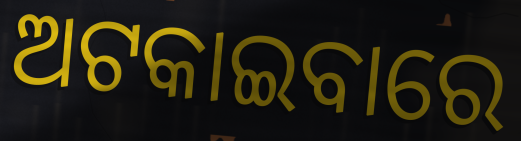
ଅଟକାଇବାରେ